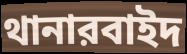
থানারবাইদ